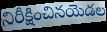
నిరీక్షించినయెడల